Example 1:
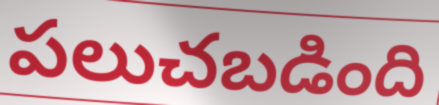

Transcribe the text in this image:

పలుచబడింది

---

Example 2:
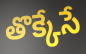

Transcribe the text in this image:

తొక్కేసే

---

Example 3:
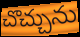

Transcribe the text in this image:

చొచ్చును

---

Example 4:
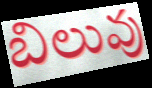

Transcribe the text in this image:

బిలువు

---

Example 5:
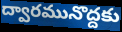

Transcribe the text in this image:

ద్వారమునొద్దకు